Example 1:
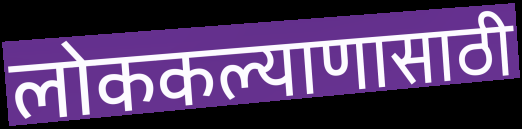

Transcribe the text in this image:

लोककल्याणासाठी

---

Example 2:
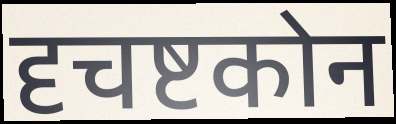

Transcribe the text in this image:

दृचष्टकोन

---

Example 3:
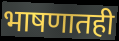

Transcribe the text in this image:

भाषणातही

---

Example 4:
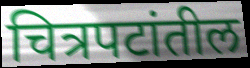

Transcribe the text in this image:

चित्रपटांतील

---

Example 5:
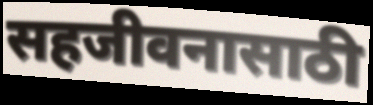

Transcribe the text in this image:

सहजीवनासाठी